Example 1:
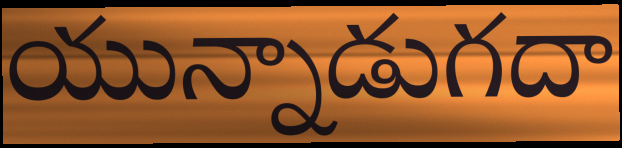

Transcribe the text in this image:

యున్నాడుగదా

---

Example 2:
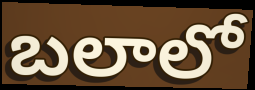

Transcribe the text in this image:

బలాలో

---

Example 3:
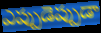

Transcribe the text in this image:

ఎప్పుడెప్పుడా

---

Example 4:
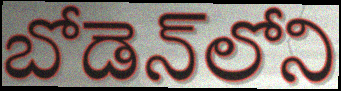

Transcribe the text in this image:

బోడెన్‌లోని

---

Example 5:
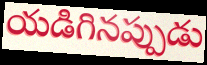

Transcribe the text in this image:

యడిగినప్పుడు